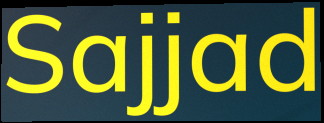
Sajjad